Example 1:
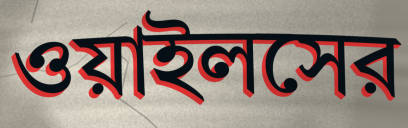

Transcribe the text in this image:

ওয়াইলসের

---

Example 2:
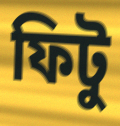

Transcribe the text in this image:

ফিটু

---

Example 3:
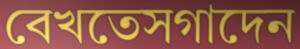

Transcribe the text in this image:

বেখতেসগাদেন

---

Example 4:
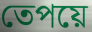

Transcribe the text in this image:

তেপয়ে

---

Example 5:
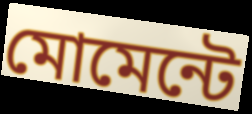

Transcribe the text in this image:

মোমেন্টে